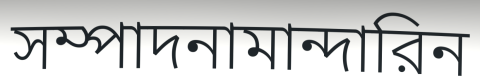
সম্পাদনামান্দারিন